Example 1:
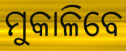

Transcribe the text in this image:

ମୁକାଳିବେ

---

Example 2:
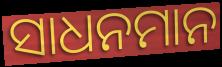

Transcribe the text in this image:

ସାଧନମାନ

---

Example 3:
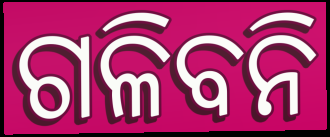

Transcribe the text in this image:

ଗଳିବନି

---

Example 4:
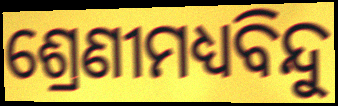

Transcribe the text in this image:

ଶ୍ରେଣୀମଧ୍ୟବିନ୍ଦୁ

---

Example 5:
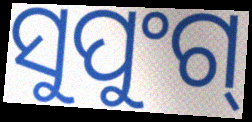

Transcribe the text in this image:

ସୁପୁଂଗ୍